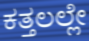
ಕತ್ತಲಲ್ಲೇ